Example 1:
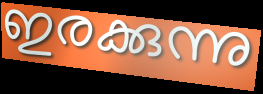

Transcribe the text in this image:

ഇരക്കുന്നു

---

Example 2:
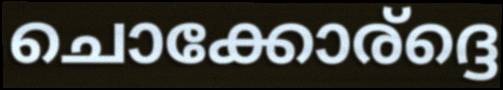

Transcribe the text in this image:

ചൊക്കോര്ദ്ദെ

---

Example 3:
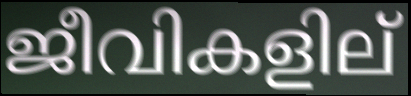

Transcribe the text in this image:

ജീവികളില്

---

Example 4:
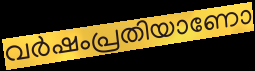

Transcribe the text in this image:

വർഷംപ്രതിയാണോ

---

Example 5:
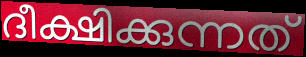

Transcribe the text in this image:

ദീക്ഷിക്കുന്നത്